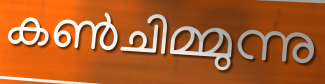
കൺചിമ്മുന്നു